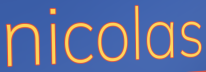
nicolas